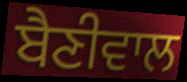
ਬੈਣੀਵਾਲ